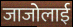
जाजोलाई